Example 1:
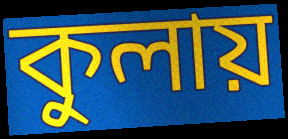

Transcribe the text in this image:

কুলায়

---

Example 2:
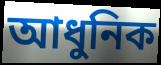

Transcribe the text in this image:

আধুনিক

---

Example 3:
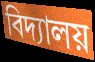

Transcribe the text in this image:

বিদ্যালয়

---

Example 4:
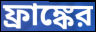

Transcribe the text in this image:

ফ্রাঙ্কের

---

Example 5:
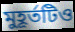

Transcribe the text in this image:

মুহূর্তটিও